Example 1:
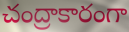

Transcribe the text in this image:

చంద్రాకారంగా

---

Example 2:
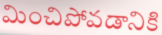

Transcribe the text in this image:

మించిపోవడానికి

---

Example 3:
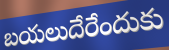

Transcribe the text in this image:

బయలుదేరేందుకు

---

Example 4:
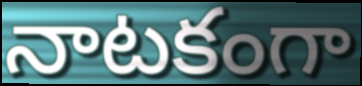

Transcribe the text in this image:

నాటకంగా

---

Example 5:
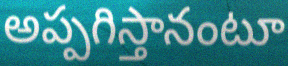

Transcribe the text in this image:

అప్పగిస్తానంటూ